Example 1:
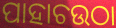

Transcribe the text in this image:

ପାହାଚଉଠା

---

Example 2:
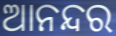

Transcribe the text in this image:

ଆନନ୍ଦର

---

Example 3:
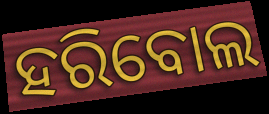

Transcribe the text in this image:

ହରିବୋଲ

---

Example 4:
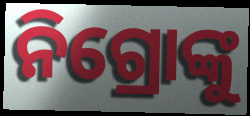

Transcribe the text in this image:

ନିଗ୍ରୋଙ୍କୁ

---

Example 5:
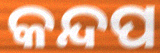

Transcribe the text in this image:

କନ୍ଦପ